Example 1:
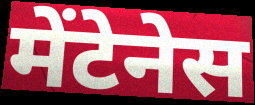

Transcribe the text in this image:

मेंटेनेस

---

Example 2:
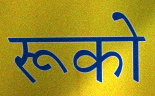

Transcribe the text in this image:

रूको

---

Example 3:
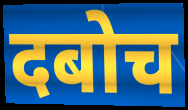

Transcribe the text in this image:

दबोच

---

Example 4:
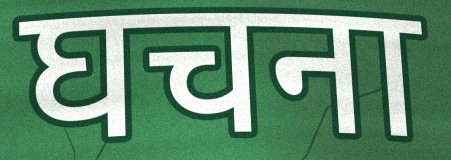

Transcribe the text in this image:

घचना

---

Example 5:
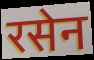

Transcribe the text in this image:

रसेन